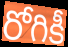
రోగికీ